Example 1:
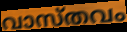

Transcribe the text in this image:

വാസ്തവം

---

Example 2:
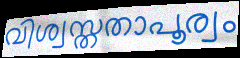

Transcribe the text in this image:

വിശ്വസ്തതാപൂര്വം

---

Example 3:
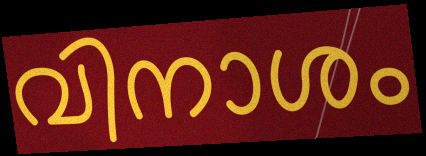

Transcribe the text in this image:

വിനാശം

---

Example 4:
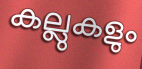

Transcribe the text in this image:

കല്ലുകളും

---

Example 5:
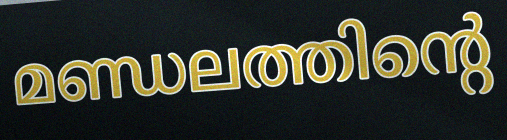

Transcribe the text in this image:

മണ്ഡലത്തിന്റെ